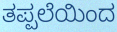
ತಪ್ಪಲೆಯಿಂದ